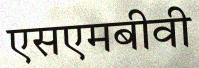
एसएमबीवी